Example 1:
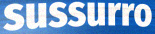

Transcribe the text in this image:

sussurro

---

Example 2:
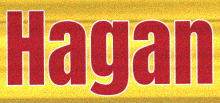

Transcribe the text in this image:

Hagan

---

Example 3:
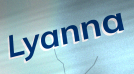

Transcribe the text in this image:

Lyanna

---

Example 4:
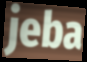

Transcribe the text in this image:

jeba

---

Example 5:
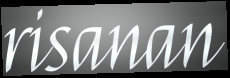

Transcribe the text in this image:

risanan